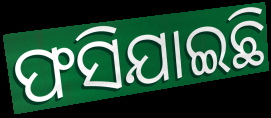
ଫସିଯାଇଛି